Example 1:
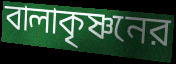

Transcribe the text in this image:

বালাকৃষ্ণনের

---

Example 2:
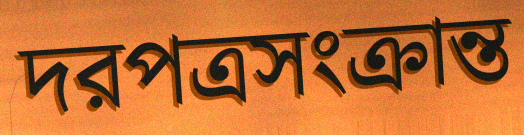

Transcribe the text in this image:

দরপত্রসংক্রান্ত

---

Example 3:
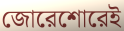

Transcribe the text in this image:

জোরেশোরেই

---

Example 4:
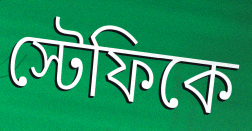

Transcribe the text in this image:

স্টেফিকে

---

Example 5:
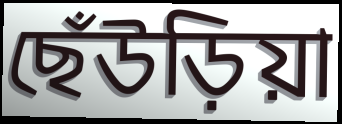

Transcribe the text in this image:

ছেঁউড়িয়া